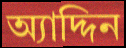
অ্যাদ্দিন